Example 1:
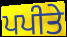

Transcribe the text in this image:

ਪਪੀਤੇ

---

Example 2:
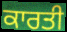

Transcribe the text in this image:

ਕਾਰਤੀ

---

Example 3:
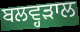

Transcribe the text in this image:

ਬਲਵ੍ਹੜਾਲ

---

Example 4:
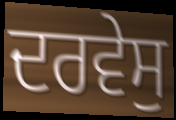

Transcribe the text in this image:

ਦਰਵੇਸੁ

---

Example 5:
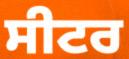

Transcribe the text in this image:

ਸੀਟਰ